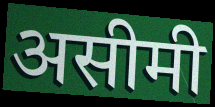
असीमी